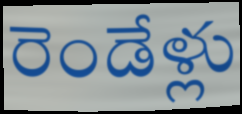
రెండేళ్లు